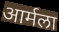
आर्मला